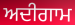
ਅਦੀਗਾਮ